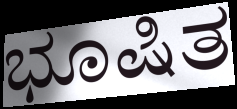
ಭೂಷಿತ